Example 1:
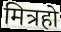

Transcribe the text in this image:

मित्रहो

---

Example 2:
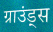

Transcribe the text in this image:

ग्राउंड्स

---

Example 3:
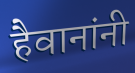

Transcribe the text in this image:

हैवानांनी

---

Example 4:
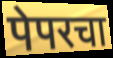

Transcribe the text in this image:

पेपरचा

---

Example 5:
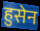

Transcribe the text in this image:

हुसेन